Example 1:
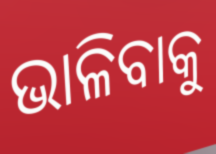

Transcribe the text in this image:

ଭାଳିବାକୁ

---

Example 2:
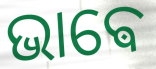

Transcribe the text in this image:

ଭାଵେ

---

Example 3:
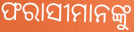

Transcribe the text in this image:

ଫରାସୀମାନଙ୍କୁ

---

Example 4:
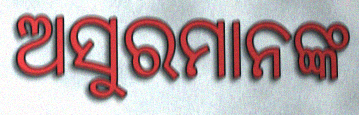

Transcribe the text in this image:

ଅସୁରମାନଙ୍କ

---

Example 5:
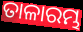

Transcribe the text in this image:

ତାଳାରମ୍ଭ